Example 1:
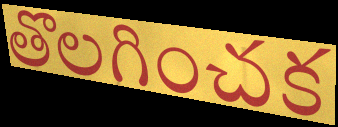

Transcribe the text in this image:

తొలగించక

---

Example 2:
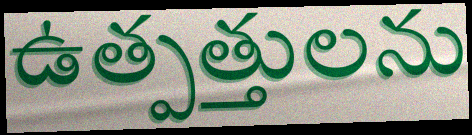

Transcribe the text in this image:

ఉత్పత్తులను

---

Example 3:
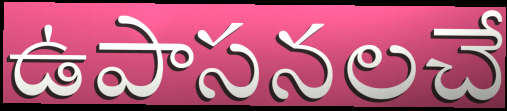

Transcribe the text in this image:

ఉపాసనలచే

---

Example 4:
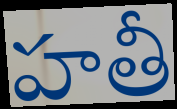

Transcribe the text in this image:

హతీ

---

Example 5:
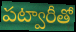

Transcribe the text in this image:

పట్వారీతో